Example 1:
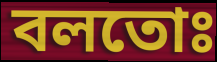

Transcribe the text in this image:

বলতোঃ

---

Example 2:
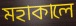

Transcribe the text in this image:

মহাকালে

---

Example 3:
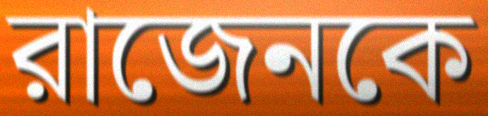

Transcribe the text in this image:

রাজেনকে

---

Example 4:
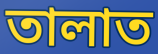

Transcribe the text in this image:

তালাত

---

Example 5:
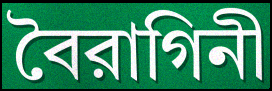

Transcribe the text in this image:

বৈরাগিনী